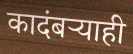
कादंबऱ्याही